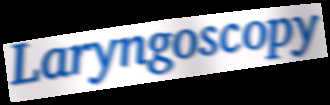
Laryngoscopy